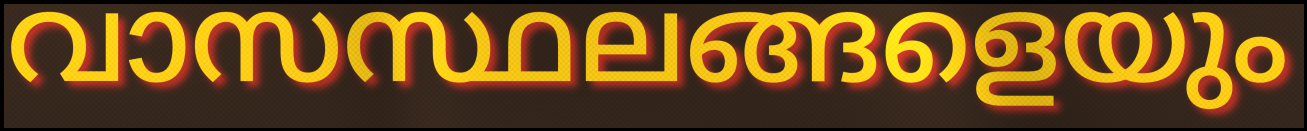
വാസസ്ഥലങ്ങളെയും